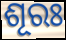
ଶୂରଃ